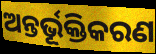
ଅନ୍ତର୍ଭୂକ୍ତିକରଣ